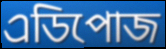
এডিপোজ